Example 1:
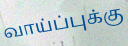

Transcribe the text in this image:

வாய்ப்புக்கு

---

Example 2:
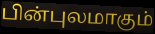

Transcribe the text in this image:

பின்புலமாகும்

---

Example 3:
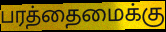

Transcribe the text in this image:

பரத்தைமைக்கு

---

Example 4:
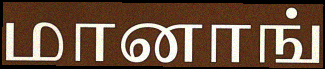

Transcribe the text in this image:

மானாங்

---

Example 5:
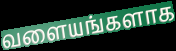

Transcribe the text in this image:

வளையங்களாக